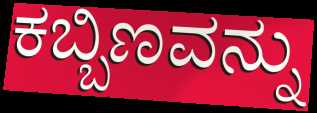
ಕಬ್ಬಿಣವನ್ನು